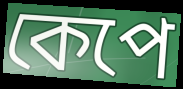
কেপে